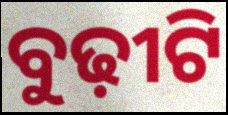
ବୁଢ଼ୀଟି